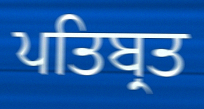
ਪਤਿਬ੍ਰਤ